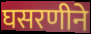
घसरणीने